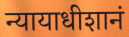
न्यायाधीशानं